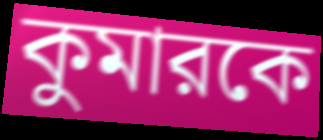
কুমারকে